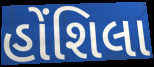
હોંશિલા